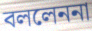
বললেননা